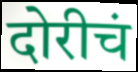
दोरीचं